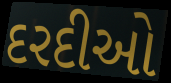
દરદીઓ